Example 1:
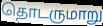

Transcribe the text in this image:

தொடருமாறு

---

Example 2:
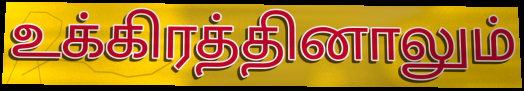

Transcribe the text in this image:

உக்கிரத்தினாலும்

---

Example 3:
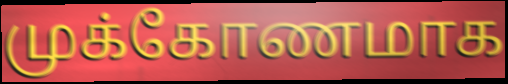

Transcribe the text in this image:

முக்கோணமாக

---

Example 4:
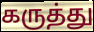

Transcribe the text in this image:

கருத்து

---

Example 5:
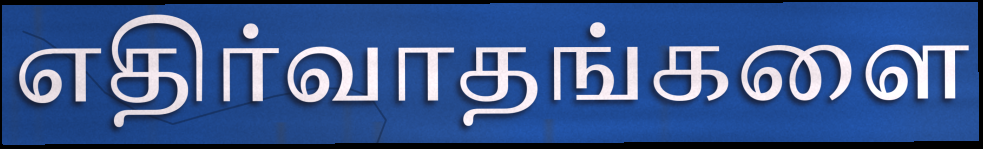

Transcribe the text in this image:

எதிர்வாதங்களை